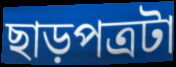
ছাড়পত্রটা